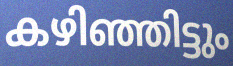
കഴിഞ്ഞിട്ടും